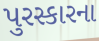
પુરસ્કારના